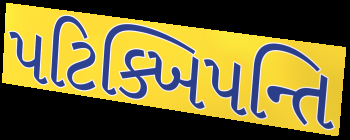
પટિક્ખિપન્તિ